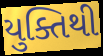
યુક્તિથી